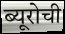
ब्यूरोची